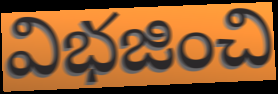
విభజించి